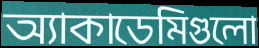
অ্যাকাডেমিগুলো